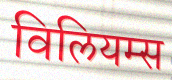
विलियम्स